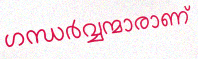
ഗന്ധർവ്വന്മാരാണ്